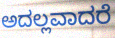
ಅದಲ್ಲವಾದರೆ